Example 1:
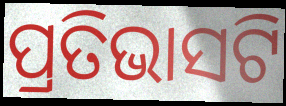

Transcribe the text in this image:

ପ୍ରତିଭାସଟି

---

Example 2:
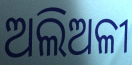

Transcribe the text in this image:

ଅଲିଅଳୀ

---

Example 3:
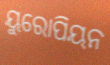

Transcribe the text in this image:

ୟୁରୋପିୟନ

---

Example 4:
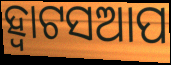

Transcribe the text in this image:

ହ୍ୱାଟସଆପ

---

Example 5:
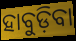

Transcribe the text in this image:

ହାବୁଡ଼ିବା